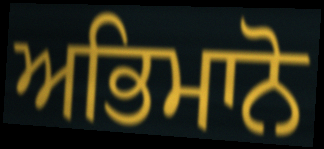
ਅਭਿਮਾਨੋ